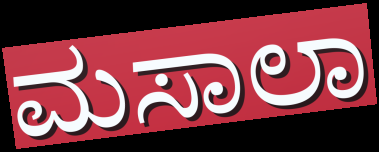
ಮಸಾಲಾ